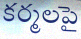
కర్మలపై